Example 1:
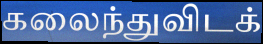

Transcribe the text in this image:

கலைந்துவிடக்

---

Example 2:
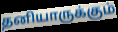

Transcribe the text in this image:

தனியாருக்கும்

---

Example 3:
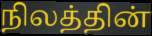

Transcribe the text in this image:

நிலத்தின்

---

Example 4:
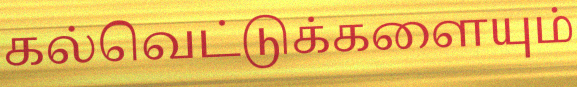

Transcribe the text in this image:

கல்வெட்டுக்களையும்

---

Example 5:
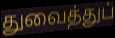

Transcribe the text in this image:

துவைத்துப்